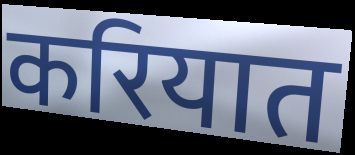
करियात